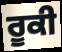
ਰੂਕੀ